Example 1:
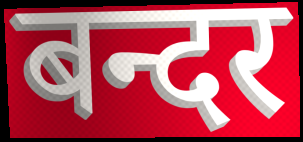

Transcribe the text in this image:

बन्दर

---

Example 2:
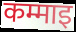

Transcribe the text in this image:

कम्माइ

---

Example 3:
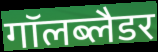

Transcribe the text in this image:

गॉलब्लैडर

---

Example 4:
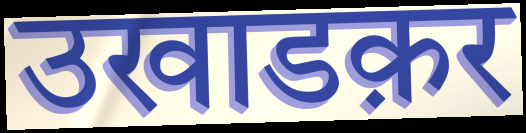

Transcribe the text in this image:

उखाडक़र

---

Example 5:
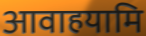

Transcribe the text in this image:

आवाहयामि